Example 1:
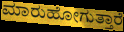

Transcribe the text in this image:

ಮಾರುಹೋಗುತ್ತಾರೆ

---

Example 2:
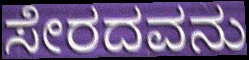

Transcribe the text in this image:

ಸೇರದವನು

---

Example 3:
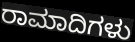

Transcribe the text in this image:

ರಾಮಾದಿಗಳು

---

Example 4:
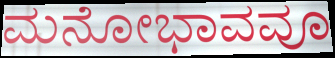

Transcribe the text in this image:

ಮನೋಭಾವವೂ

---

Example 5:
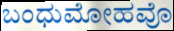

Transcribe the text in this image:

ಬಂಧುಮೋಹವೊ